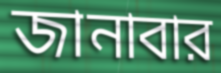
জানাবার